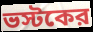
ভস্টকের